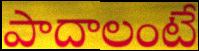
పాదాలంటే